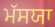
ਮੱਸਯਾ